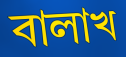
বালাখ